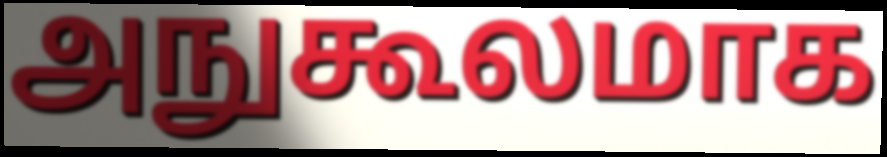
அநுகூலமாக